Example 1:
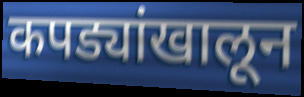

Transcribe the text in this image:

कपड्यांखालून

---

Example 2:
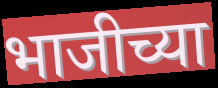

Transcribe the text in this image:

भाजीच्या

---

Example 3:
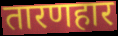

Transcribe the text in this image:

तारणहार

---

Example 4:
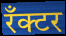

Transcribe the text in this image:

रँक्टर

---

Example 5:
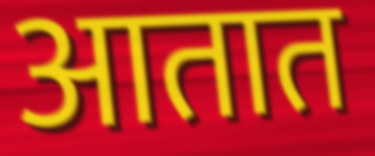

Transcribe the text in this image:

आतात